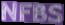
NFBS